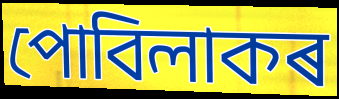
পোবিলাকৰ